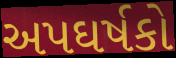
અપઘર્ષકો